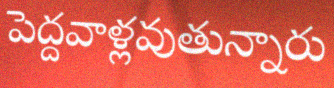
పెద్దవాళ్లవుతున్నారు